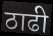
ठाढी